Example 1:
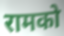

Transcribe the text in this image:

रामको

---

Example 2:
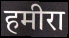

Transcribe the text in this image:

हमीरा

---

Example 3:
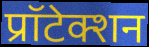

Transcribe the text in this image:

प्रॉटेक्शन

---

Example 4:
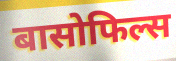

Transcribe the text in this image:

बासोफिल्स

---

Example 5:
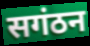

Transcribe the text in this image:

सगंठन